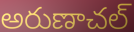
అరుణాచల్